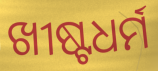
ଖୀଷ୍ଟଧର୍ମ